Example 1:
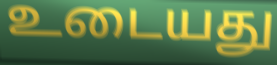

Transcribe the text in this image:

உடையது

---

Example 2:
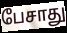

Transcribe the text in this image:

பேசாது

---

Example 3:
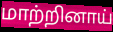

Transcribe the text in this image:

மாற்றினாய்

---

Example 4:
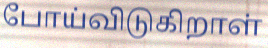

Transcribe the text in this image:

போய்விடுகிறாள்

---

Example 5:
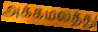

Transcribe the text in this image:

அக்கமலத்து